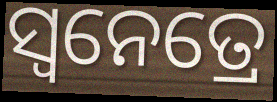
ସ୍ୱନେତ୍ରେ